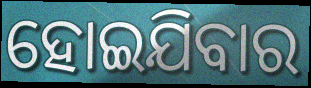
ହୋଇଯିବାର